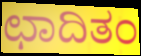
ಛಾದಿತಂ